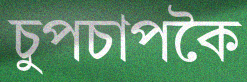
চুপচাপকৈ